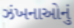
ઝંખનાઓનું